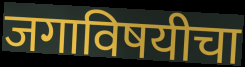
जगाविषयीचा